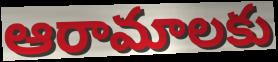
ఆరామాలకు